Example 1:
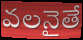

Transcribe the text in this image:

వలనైతే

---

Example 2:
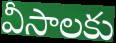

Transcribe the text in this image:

వీసాలకు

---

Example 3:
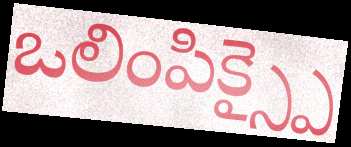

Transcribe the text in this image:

ఒలింపిక్స్పై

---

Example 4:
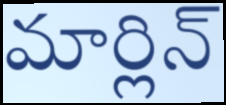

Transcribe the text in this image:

మార్లిన్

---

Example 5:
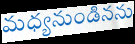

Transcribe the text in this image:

మధ్యనుండినను